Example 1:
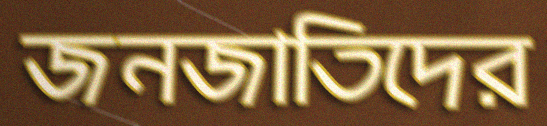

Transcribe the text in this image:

জনজাতিদের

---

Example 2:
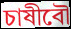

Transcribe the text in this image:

চাষীবৌ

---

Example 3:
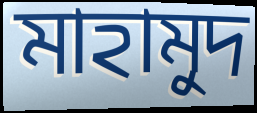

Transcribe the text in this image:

মাহামুদ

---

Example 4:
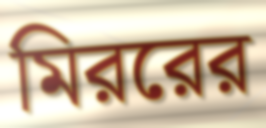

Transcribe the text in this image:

মিররের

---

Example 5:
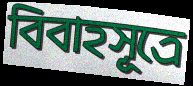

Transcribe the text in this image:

বিবাহসূত্রে